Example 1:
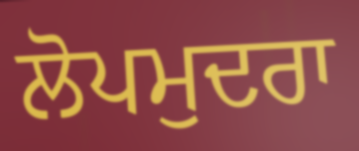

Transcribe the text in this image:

ਲੋਪਮੁਦਰਾ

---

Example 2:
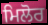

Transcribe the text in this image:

ਮਿਲੋਰ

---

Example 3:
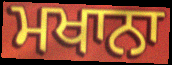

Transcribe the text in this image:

ਮਖਾਨਾ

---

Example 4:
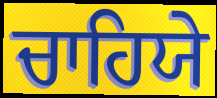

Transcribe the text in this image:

ਚਾਹਿਯੇ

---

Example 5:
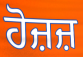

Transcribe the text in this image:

ਹੋਜ਼ਜ਼